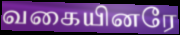
வகையினரே